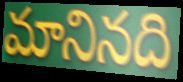
మానినది